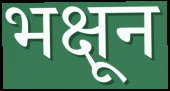
भक्षून